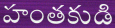
హంతకుడి